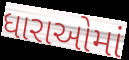
ધારાઓમાં